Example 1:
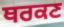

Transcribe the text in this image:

ਥਰਕਣ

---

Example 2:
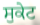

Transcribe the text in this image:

ਸੁਕੇਟ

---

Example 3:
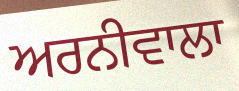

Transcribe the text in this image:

ਅਰਨੀਵਾਲਾ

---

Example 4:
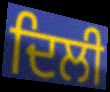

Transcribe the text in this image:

ਦਿਲੀ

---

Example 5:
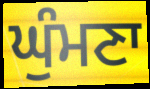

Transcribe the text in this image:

ਘੁੰਮਣਾ